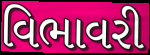
વિભાવરી